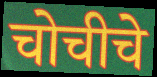
चोचीचे